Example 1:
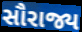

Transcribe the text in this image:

સૌરાજ્ય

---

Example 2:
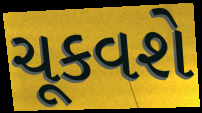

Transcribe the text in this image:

ચૂકવશે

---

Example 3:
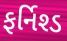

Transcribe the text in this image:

ફર્નિશ્ડ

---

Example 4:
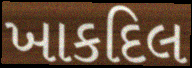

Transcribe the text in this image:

ખાકદિલ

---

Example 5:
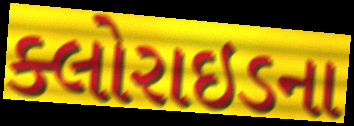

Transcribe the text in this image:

ક્લોરાઇડના